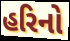
હરિનો